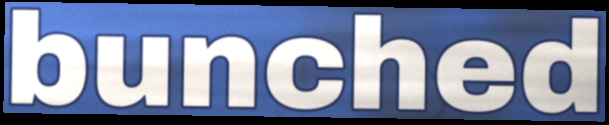
bunched